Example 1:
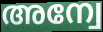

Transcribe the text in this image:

അന്വേ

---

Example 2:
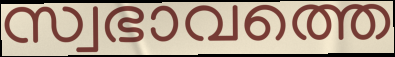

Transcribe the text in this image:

സ്വഭാവത്തെ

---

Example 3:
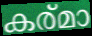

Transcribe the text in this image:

കര്മാ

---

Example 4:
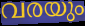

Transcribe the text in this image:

വരയും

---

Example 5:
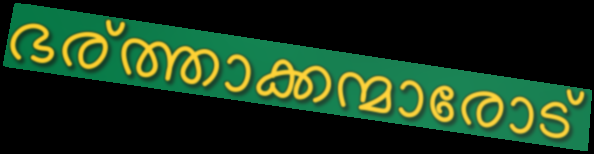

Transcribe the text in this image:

ഭര്ത്താക്കന്മാരോട്